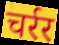
चर्रर